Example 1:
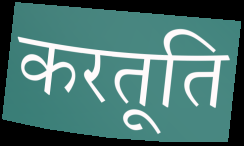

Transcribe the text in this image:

करतूति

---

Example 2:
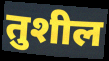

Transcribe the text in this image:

तुशील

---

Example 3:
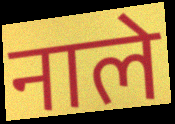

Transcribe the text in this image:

नाले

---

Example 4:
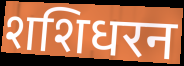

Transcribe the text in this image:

शशिधरन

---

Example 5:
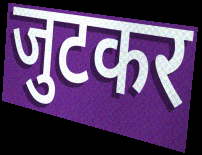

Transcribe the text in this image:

जुटकर